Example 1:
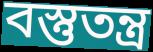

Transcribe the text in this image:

বস্তুতন্ত্র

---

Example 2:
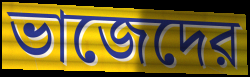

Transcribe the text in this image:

ভাজেদের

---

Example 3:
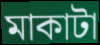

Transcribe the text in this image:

মাকাটা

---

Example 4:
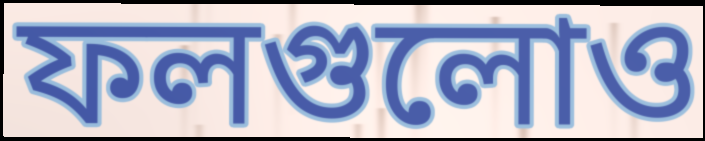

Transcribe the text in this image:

ফলগুলোও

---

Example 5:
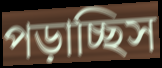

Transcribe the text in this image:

পড়াচ্ছিস